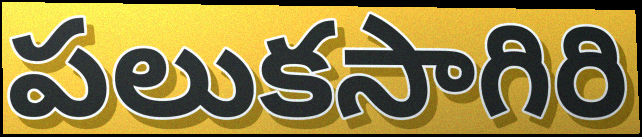
పలుకసాగిరి